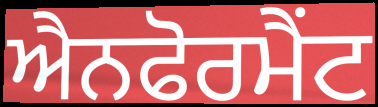
ਐਨਫੋਰਮੈਂਟ